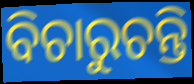
ବିଚାରୁଚନ୍ତି